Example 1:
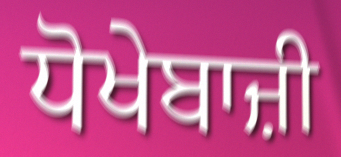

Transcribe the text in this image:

ਧੋਖੇਬਾਜ਼ੀ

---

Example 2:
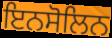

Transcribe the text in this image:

ਇਨਸੋਲਿਨ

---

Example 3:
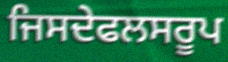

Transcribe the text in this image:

ਜਿਸਦੇਫਲਸਰੂਪ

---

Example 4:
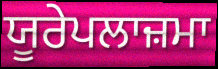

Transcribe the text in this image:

ਯੂਰੇਪਲਾਜ਼ਮਾ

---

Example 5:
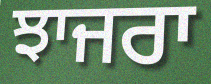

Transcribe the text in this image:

ਝਾਜਰਾ